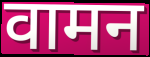
वामन